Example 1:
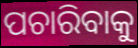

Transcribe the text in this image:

ପଚାରିବାକୁ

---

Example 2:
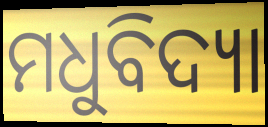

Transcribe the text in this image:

ମଧୁବିଦ୍ୟା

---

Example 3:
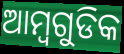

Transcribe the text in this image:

ଆମ୍ବଗୁଡିକ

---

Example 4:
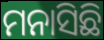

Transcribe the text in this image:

ମନାସିଛି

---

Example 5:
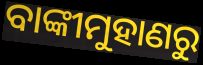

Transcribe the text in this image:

ବାଙ୍କୀମୁହାଣରୁ